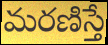
మరణిస్తే